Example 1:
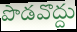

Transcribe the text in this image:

పొడవొద్దు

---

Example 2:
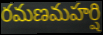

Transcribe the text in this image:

రమణమహర్షి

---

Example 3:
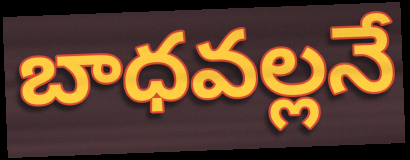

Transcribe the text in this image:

బాధవల్లనే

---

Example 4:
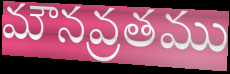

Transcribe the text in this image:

మౌనవ్రతము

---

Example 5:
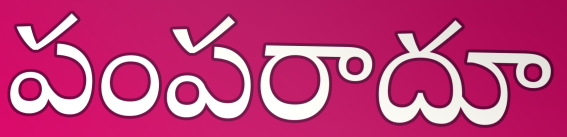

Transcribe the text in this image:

పంపరాదూ